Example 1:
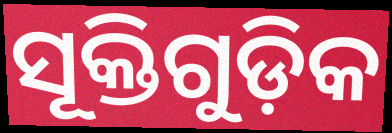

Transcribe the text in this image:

ସୂକ୍ତିଗୁଡ଼ିକ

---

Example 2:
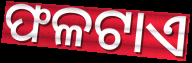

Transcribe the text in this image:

ଫଳଟାଏ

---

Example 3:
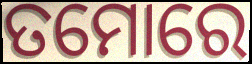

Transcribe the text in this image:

ତମୋରେ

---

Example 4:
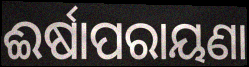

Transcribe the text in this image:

ଈର୍ଷାପରାୟଣା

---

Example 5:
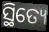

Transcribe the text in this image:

ସ୍ଥିତ୍ୟେ